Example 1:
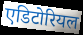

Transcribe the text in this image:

एडिटोरियल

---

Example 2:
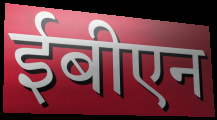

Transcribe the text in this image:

ईबीएन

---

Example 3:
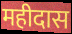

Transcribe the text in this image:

महीदास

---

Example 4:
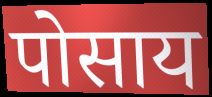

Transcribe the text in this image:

पोसाय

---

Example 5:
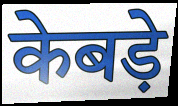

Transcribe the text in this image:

केबड़े